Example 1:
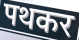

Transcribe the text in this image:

पथकर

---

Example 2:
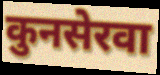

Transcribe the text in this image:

कुनसेरवा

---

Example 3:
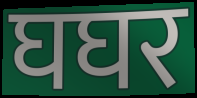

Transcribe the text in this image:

घघर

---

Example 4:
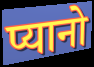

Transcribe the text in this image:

प्यानो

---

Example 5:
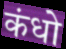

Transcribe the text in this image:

कंधो